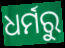
ଧର୍ମରୁ